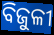
ବିଜୁଳୀ